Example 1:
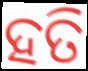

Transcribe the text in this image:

ହତି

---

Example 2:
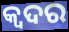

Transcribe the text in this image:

କ୍ୱଦର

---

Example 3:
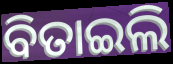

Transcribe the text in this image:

ବିତାଇଲି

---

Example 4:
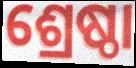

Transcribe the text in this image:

ଶ୍ରେଷ୍ଠା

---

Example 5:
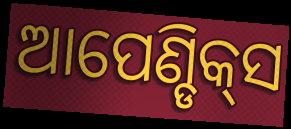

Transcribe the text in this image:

ଆପେଣ୍ଡିକ୍‌ସ